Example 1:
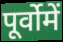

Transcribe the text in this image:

पूर्वोमें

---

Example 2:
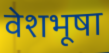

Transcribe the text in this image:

वेशभूषा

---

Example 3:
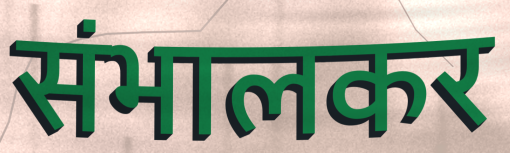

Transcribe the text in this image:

संभालकर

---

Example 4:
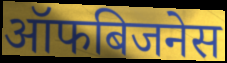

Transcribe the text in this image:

ऑफबिजनेस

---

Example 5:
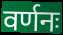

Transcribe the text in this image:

वर्णनः